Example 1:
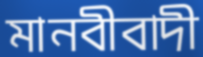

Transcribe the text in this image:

মানবীবাদী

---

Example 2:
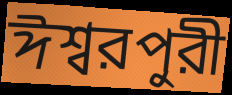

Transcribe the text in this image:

ঈশ্বরপুরী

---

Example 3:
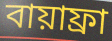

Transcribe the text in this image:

বায়াফ্রা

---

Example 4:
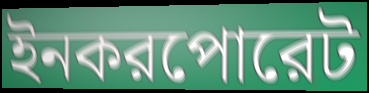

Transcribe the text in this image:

ইনকরপোরেট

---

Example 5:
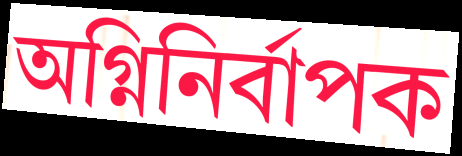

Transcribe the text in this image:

অগ্নিনির্বাপক